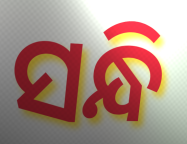
ସନ୍ଧି